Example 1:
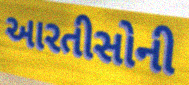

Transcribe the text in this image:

આરતીસોની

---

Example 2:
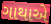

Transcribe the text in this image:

ગાથાએ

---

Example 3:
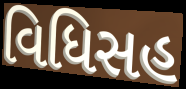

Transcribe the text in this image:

વિધિસહ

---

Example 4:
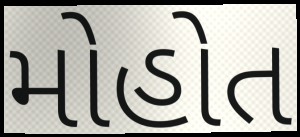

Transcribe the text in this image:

મોહોત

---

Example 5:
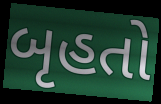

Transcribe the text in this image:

બૃહતો